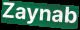
Zaynab